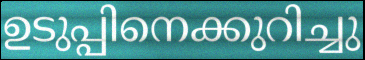
ഉടുപ്പിനെക്കുറിച്ചു